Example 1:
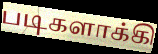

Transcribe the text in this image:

படிகளாக்கி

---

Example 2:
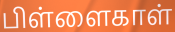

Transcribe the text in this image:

பிள்ளைகாள்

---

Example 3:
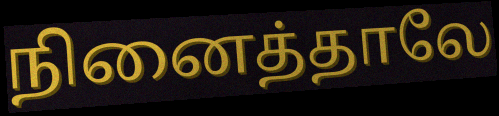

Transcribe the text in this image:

நினைத்தாலே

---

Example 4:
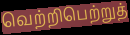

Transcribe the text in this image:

வெற்றிபெற்றுத்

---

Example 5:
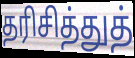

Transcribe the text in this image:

தரிசித்துத்